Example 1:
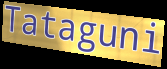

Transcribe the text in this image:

Tataguni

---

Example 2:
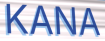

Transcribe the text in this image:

KANA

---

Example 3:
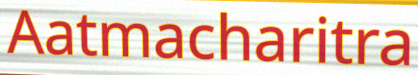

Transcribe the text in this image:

Aatmacharitra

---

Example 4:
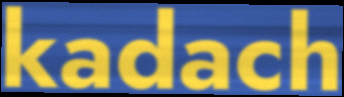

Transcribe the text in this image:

kadach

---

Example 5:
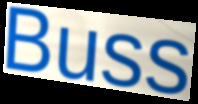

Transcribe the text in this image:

Buss